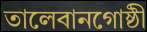
তালেবানগোষ্ঠী